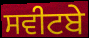
ਸਵੀਟਬੇ